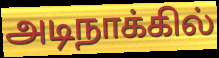
அடிநாக்கில்